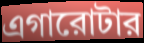
এগারোটার